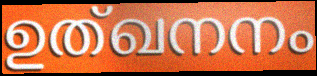
ഉത്ഖനനം